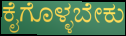
ಕೈಗೊಳ್ಳಬೇಕು